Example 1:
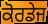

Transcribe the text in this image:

ਕੋਰਡੇਜ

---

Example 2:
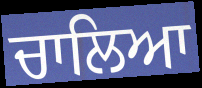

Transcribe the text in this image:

ਚਾਲਿਆ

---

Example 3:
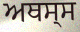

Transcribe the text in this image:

ਅਥਸ੍ਸ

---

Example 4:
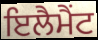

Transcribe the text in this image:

ਇਲੈਮੈਂਟ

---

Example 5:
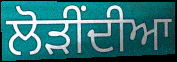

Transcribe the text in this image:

ਲੋੜੀਂਦੀਆ